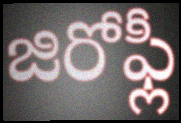
జిరోఫ్లీ